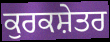
ਕੁਰਕਸ਼ੇਤਰ